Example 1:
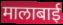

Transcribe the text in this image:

मालाबाई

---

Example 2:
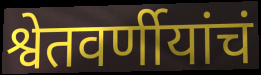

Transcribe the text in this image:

श्वेतवर्णीयांचं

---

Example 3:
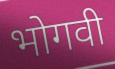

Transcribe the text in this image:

भोगवी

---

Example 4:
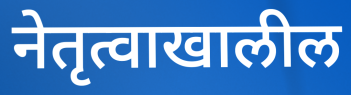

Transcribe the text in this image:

नेतृत्वाखालील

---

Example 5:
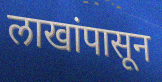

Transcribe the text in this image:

लाखांपासून